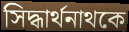
সিদ্ধার্থনাথকে